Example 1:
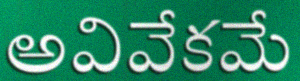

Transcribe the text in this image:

అవివేకమే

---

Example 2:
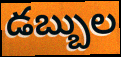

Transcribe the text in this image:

డబ్బుల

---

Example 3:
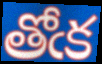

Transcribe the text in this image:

తోఁక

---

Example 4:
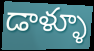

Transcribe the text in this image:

డాళ్ళూ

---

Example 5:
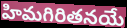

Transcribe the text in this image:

హిమగిరితనయే